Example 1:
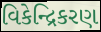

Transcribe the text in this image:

વિકેન્દ્રિકરણ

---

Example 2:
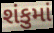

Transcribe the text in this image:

શંકુમાં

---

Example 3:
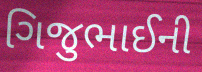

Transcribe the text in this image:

ગિજુભાઈની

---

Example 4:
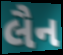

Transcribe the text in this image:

લૈન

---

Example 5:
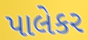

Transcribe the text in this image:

પાલેકર